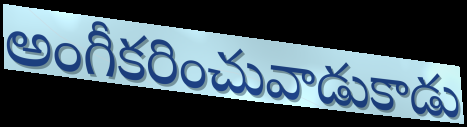
అంగీకరించువాడుకాడు